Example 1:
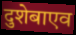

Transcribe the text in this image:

दुशेबाएव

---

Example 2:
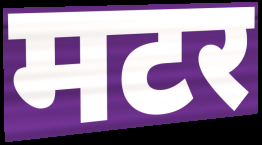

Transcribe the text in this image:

मटर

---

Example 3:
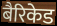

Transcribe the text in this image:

बैरिकेड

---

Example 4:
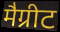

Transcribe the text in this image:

मैग्रीट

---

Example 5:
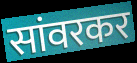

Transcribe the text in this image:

सांवरकर